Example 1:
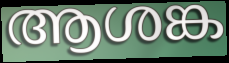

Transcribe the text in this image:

ആശങ്ക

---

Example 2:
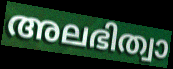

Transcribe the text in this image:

അലഭിത്വാ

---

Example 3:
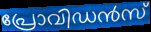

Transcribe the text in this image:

പ്രോവിഡൻസ്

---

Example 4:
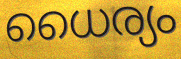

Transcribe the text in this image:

ധൈര്യം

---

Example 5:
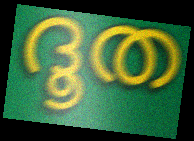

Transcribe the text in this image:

ദൂത